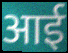
आई